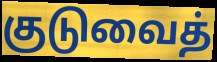
குடுவைத்